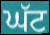
ਘੱਟ